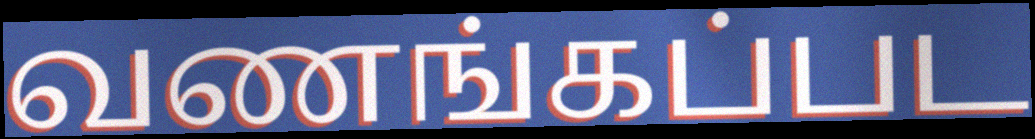
வணங்கப்பட